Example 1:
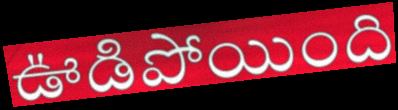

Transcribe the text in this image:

ఊడిపోయింది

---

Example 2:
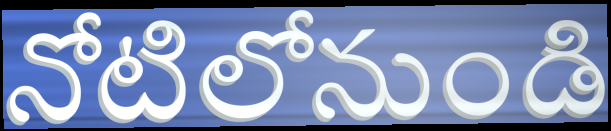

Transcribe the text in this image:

నోటిలోనుండి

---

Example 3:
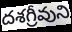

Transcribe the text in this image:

దశగ్రీవుని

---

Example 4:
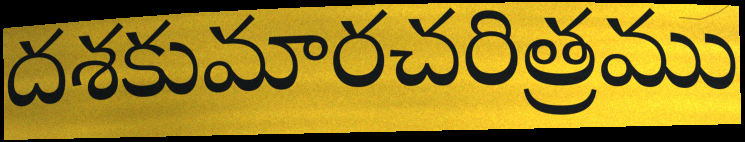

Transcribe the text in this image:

దశకుమారచరిత్రము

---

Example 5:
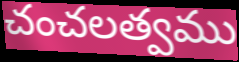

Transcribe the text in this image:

చంచలత్వము